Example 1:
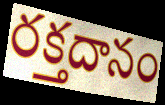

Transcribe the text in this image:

రక్తదానం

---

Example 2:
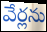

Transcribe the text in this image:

వేర్లను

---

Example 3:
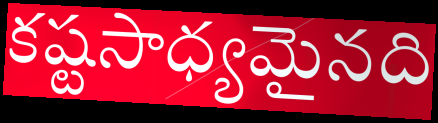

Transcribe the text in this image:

కష్టసాధ్యమైనది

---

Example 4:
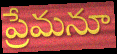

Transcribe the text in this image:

ప్రేమనూ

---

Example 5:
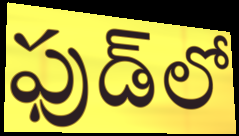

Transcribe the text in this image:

ఫుడ్‌లో